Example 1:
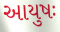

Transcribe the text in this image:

આયુષઃ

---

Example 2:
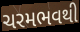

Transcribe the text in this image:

ચરમભવથી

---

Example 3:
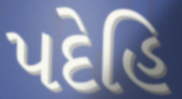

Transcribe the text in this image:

પદેહિ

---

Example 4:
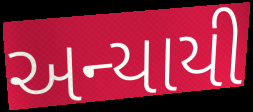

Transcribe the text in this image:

અન્યાયી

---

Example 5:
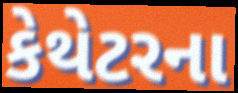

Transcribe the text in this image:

કેથેટરના